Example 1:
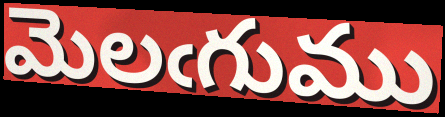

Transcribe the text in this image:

మెలఁగుము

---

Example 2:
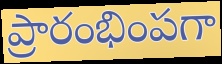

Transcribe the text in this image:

ప్రారంభింపగా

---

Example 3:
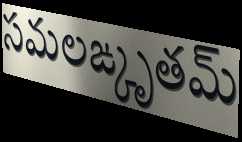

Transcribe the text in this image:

సమలఙ్కృతమ్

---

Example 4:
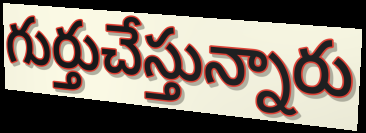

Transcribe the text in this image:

గుర్తుచేస్తున్నారు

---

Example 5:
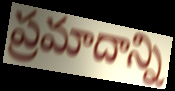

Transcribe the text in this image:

ప్రమాదాన్ని